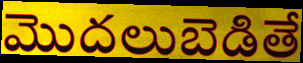
మొదలుబెడితే